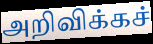
அறிவிக்கச்